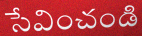
సేవించండి